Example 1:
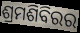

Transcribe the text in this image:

ଶ୍ରମଶିବିରର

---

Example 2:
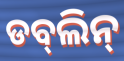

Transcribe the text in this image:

ଡବ୍‌ଲିନ୍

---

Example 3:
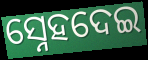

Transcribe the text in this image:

ସ୍ନେହଦେଇ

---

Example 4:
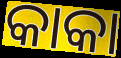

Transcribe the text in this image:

କାକା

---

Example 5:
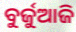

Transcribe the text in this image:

ବୁର୍ଜୁଆଜି